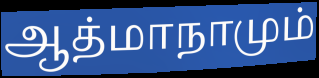
ஆத்மாநாமும்